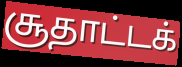
சூதாட்டக்